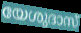
യേശുദാസ്